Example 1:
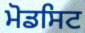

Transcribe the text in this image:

ਮੋਡਸਿਟ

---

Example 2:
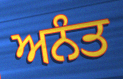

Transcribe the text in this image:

ਅਨੰਤ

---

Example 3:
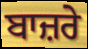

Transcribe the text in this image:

ਬਾਜ਼ਰੇ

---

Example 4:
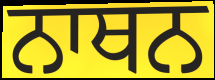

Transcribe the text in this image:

ਨਾਥਨ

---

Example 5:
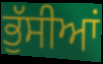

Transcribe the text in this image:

ਭੁੱਸੀਆਂ